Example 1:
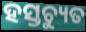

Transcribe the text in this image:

ହସ୍ତଚ୍ୟୁତ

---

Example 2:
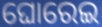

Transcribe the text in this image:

ଘୋରେଇ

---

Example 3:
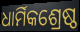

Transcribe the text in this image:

ଧାର୍ମିକଶ୍ରେଷ୍ଠ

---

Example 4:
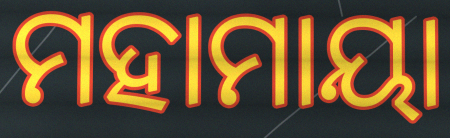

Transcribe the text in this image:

ମହାମାୟା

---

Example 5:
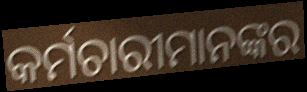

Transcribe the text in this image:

କର୍ମଚାରୀମାନଙ୍କର